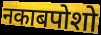
नकाबपोशो